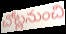
చోట్లనుంచి